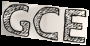
GCE